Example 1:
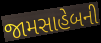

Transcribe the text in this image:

જામસાહેબની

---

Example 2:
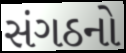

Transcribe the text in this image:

સંગઠનો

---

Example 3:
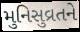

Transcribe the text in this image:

મુનિસુવ્રતને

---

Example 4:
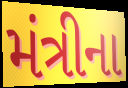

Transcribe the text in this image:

મંત્રીના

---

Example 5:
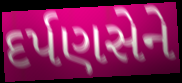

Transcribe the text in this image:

દર્પણસેને